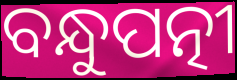
ବନ୍ଧୁପତ୍ନୀ